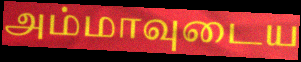
அம்மாவுடைய